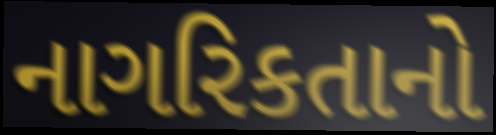
નાગરિકતાનો